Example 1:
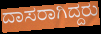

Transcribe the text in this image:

ದಾಸರಾಗಿದ್ದರು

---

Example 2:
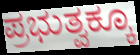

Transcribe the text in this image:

ಪ್ರಭುತ್ವಕ್ಕೂ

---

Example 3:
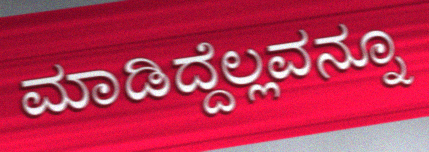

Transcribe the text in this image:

ಮಾಡಿದ್ದೆಲ್ಲವನ್ನೂ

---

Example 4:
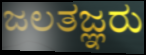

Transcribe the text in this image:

ಜಲತಜ್ಞರು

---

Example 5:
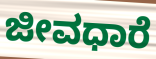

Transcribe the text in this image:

ಜೀವಧಾರೆ